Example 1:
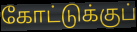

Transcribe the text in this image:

கோட்டுக்குப்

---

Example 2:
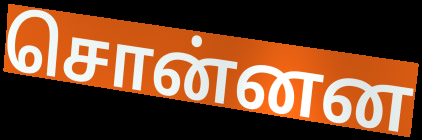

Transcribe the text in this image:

சொன்னன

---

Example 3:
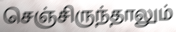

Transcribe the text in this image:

செஞ்சிருந்தாலும்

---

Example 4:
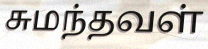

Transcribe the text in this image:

சுமந்தவள்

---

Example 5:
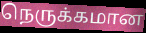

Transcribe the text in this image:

நெருக்கமான